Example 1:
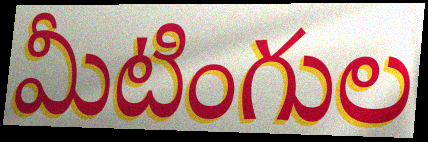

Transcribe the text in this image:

మీటింగుల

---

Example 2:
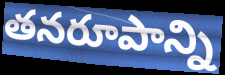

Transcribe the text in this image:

తనరూపాన్ని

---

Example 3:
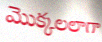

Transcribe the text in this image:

మొక్కలలాగా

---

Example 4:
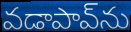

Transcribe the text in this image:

వడాపావ్‌ను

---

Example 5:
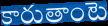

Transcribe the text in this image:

కారుతాంటె